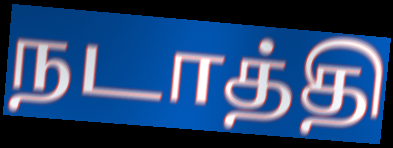
நடாத்தி